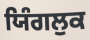
ਯਿੰਗਲੁਕ